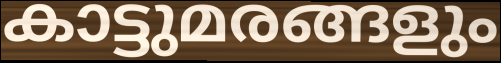
കാട്ടുമരങ്ങളും